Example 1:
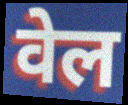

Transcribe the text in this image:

वेल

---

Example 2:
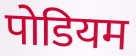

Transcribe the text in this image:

पोडियम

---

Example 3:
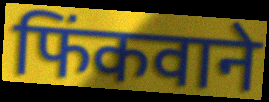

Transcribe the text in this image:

फिंकवाने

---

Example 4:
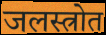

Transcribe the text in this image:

जलस्त्रोत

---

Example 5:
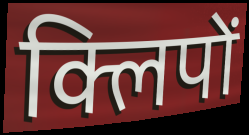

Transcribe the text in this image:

क्लिपों